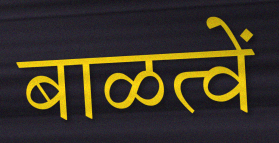
बाळत्वें